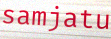
samjatu